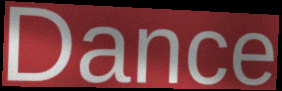
Dance